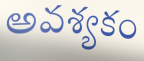
అవశ్యకం